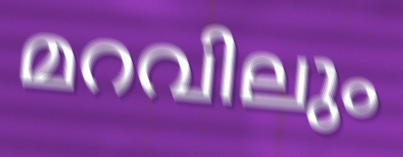
മറവിലും